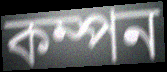
কম্পন